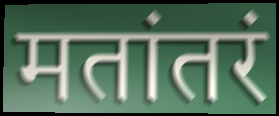
मतांतरं